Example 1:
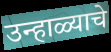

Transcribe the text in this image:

उन्हाळ्याचे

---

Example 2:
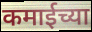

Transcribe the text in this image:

कमाईच्या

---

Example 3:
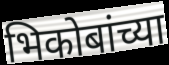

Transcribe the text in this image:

भिकोबांच्या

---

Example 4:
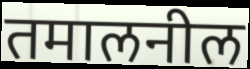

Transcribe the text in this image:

तमालनील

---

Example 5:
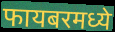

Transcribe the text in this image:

फायबरमध्ये